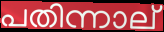
പതിന്നാല്